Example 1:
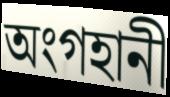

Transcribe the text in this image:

অংগহানী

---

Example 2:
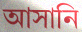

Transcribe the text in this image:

আসানি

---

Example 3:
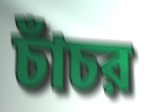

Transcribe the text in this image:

চাঁচর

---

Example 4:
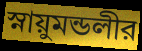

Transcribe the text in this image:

স্নায়ুমন্ডলীর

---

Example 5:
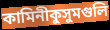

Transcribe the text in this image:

কামিনীকুসুমগুলি